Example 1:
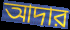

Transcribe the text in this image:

আদার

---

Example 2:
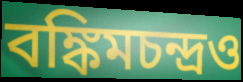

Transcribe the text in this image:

বঙ্কিমচন্দ্রও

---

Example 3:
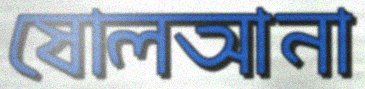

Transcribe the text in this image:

ষোলআনা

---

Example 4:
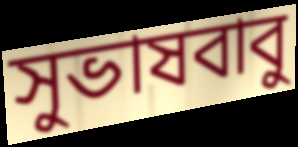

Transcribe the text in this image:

সুভাষবাবু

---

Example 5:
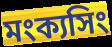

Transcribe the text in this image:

মংক্যসিং